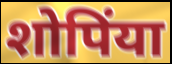
शोपिंया